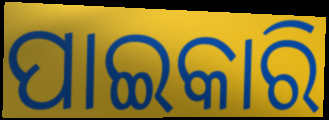
ପାଇକାରି